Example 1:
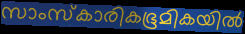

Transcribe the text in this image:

സാംസ്കാരികഭൂമികയിൽ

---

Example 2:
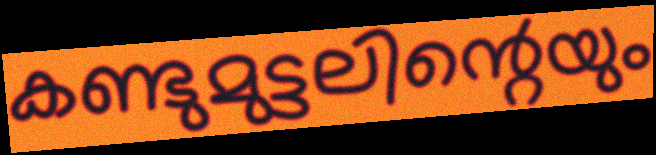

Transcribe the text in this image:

കണ്ടുമുട്ടലിന്റെയും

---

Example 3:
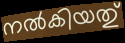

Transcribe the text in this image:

നൽകിയതു്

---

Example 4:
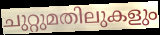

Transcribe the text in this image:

ചുറ്റുമതിലുകളും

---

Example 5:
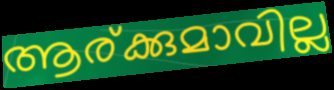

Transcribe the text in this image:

ആര്ക്കുമാവില്ല